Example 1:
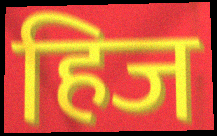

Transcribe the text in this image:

हिज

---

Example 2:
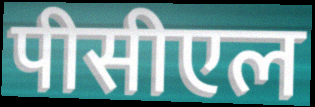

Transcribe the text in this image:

पीसीएल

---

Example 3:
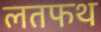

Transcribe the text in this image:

लतफथ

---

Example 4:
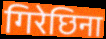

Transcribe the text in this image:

गिरेछिना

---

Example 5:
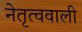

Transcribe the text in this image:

नेतृत्ववाली